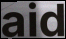
aid